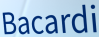
Bacardi